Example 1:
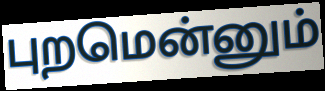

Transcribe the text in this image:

புறமென்னும்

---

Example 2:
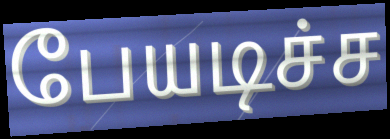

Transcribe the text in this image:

பேயடிச்ச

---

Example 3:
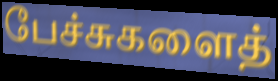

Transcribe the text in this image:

பேச்சுகளைத்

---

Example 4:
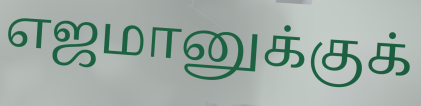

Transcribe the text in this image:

எஜமானுக்குக்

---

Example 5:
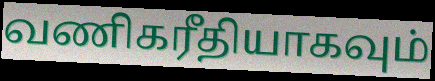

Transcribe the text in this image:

வணிகரீதியாகவும்